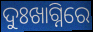
ଦୁଃଖାଗ୍ନିରେ